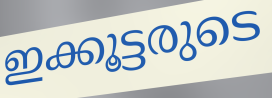
ഇക്കൂട്ടരുടെ